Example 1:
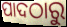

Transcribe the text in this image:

ପାଦଠାରୁ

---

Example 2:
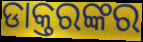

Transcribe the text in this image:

ଡାକ୍ତରଙ୍କର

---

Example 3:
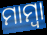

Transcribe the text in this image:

ମାମ୍ଵା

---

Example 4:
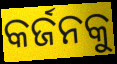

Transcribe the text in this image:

କର୍ଜନକୁ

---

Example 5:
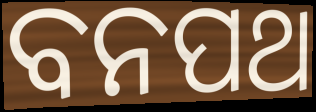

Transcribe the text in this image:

ବନପଥ